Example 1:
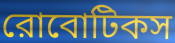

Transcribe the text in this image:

রোবোটিকস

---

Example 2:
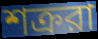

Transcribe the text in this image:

শক্ররা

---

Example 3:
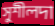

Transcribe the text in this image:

সুশীলদা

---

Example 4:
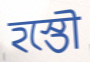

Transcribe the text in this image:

হস্তৌ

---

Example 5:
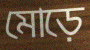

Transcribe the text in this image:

মোড়ে